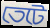
তেটে